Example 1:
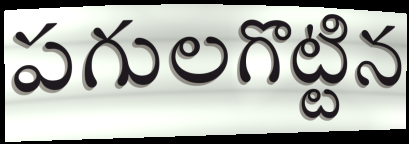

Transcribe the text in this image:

పగులగొట్టిన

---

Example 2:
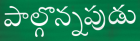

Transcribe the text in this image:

పాల్గొన్నపుడు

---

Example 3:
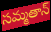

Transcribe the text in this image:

సమ్మతాన్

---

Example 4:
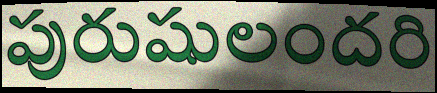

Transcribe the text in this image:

పురుషులందరి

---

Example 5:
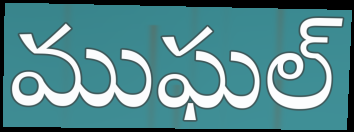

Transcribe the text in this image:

ముఘల్